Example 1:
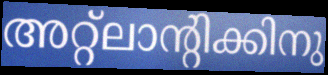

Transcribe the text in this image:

അറ്റ്ലാന്റിക്കിനു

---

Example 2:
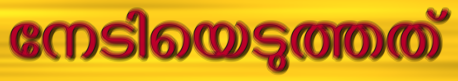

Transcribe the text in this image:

നേടിയെടുത്തത്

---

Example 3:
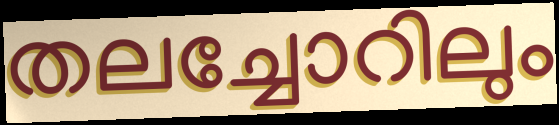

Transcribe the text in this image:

തലച്ചോറിലും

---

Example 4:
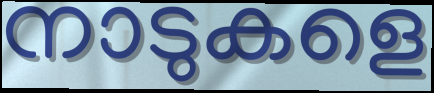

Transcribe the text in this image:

നാടുകളെ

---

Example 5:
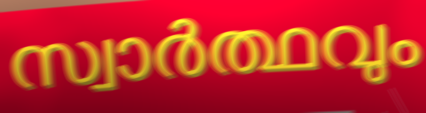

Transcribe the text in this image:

സ്വാർത്ഥവും